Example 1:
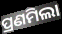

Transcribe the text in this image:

ପ୍ରଣମିଲା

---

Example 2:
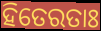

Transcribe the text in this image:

ହିତେରତାଃ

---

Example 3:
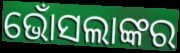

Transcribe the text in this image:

ଭୋଁସଲାଙ୍କର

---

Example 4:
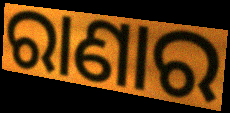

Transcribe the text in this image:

ରାଣାର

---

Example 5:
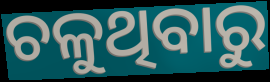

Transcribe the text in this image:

ଚଳୁଥିବାରୁ